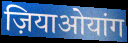
ज़ियाओयांग